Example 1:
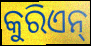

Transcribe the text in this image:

କୁରିଏନ୍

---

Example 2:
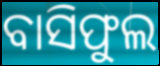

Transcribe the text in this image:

ବାସିଫୁଲ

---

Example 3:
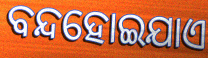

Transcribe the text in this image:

ବନ୍ଦହୋଇଯାଏ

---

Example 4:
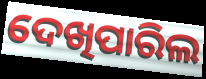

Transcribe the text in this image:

ଦେଖିପାରିଲ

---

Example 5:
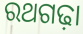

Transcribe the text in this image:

ରଥଗଢ଼ା